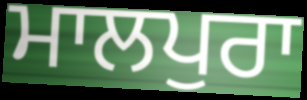
ਮਾਲਪੁਰਾ